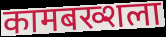
कामबख्शला